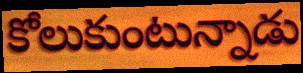
కోలుకుంటున్నాడు